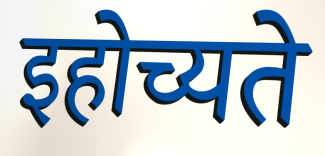
इहोच्यते